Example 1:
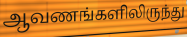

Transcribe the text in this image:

ஆவணங்களிலிருந்து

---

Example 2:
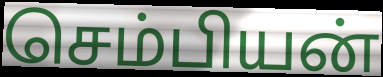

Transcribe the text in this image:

செம்பியன்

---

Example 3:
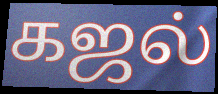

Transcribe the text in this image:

கஜல்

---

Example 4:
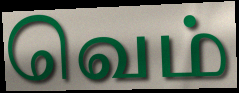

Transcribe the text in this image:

வெம்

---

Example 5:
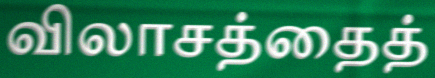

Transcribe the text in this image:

விலாசத்தைத்